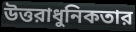
উত্তরাধুনিকতার